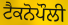
ਟੈਕਨੋਪੌਲੀ